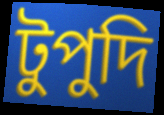
টুপুদি